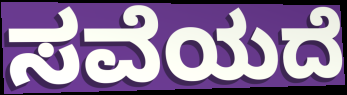
ಸವೆಯದೆ